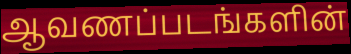
ஆவணப்படங்களின்